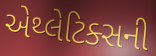
એથ્લેટિક્સની